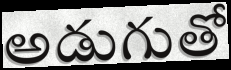
అడుగుతో